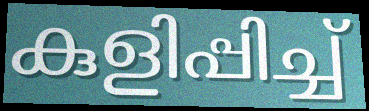
കുളിപ്പിച്ച്